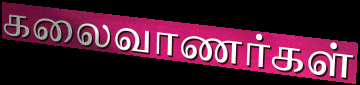
கலைவாணர்கள்